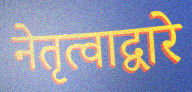
नेतृत्वाद्वारे